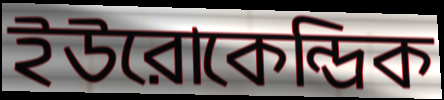
ইউরোকেন্দ্রিক